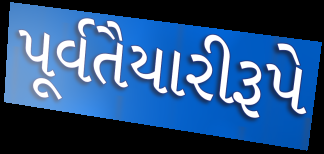
પૂર્વતૈયારીરૂપે